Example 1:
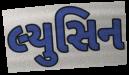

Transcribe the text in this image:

લ્યુસિન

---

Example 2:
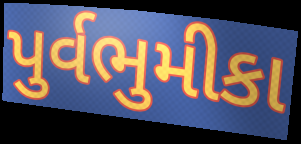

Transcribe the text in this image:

પુર્વભુમીકા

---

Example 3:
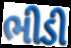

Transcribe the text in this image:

ભીડી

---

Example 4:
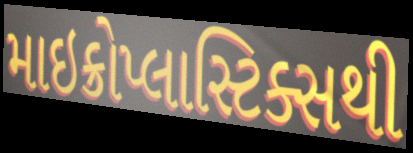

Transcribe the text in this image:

માઇક્રોપ્લાસ્ટિક્સથી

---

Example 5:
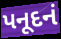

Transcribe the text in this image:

પનૂદનં